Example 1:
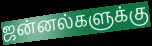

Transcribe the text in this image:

ஜன்னல்களுக்கு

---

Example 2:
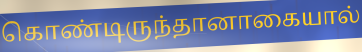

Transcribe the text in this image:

கொண்டிருந்தானாகையால்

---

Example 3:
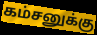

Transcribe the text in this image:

கம்சனுக்கு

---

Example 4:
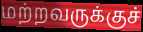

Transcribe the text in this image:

மற்றவருக்குச்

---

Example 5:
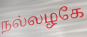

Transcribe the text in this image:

நல்லழகே